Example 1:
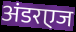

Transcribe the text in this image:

अंडरएज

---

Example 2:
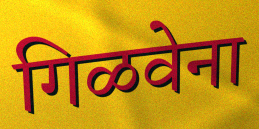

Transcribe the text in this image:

गिळवेना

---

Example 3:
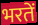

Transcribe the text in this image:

भरतें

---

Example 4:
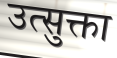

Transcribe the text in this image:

उत्सुक्ता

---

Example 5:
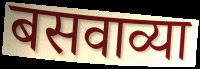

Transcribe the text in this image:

बसवाव्या